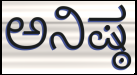
ಅನಿಷ್ಠ